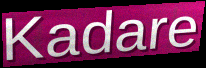
Kadare